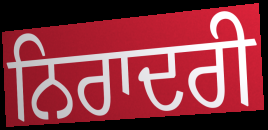
ਨਿਰਾਦਰੀ